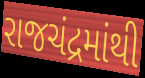
રાજચંદ્રમાંથી